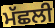
ਮੱਛਲੀ